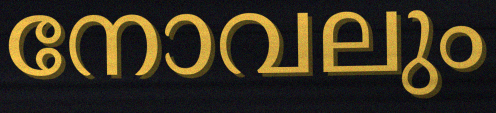
നോവലും